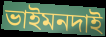
ভাইমনদাই